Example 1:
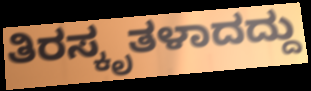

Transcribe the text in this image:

ತಿರಸ್ಕೃತಳಾದದ್ದು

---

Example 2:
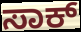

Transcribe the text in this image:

ಸಾಕ್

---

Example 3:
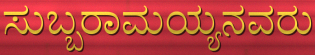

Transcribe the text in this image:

ಸುಬ್ಬರಾಮಯ್ಯನವರು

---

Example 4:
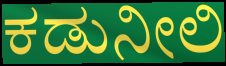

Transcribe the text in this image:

ಕಡುನೀಲಿ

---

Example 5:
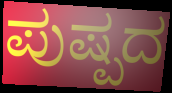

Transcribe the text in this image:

ಪುಷ್ಪದ